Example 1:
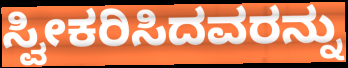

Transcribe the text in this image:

ಸ್ವೀಕರಿಸಿದವರನ್ನು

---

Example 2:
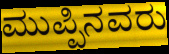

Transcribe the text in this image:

ಮುಪ್ಪಿನವರು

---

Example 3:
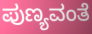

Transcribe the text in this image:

ಪುಣ್ಯವಂತೆ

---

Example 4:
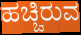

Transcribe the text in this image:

ಹಚ್ಚಿರುವ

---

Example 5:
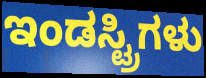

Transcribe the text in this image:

ಇಂಡಸ್ಟ್ರಿಗಳು